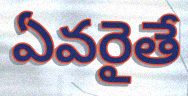
ఏవరైతే